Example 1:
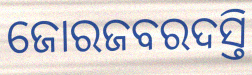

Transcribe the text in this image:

ଜୋରଜବରଦସ୍ତି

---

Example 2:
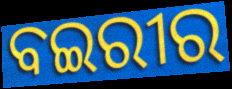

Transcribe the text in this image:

ବଇରୀର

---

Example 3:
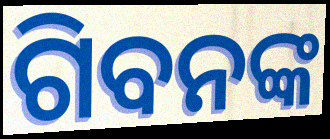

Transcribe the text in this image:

ଗିବନଙ୍କ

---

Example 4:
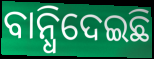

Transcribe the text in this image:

ବାନ୍ଧିଦେଇଛି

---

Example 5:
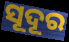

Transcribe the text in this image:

ସୂଦୂର